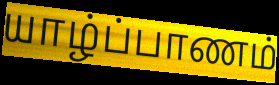
யாழ்ப்பாணம்